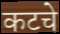
कटचे